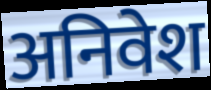
अनिवेश